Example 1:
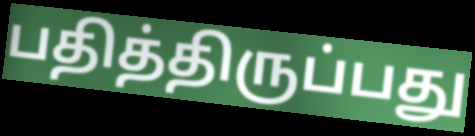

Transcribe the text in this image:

பதித்திருப்பது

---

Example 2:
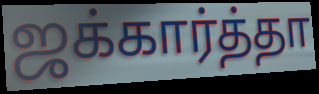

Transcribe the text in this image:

ஜக்கார்த்தா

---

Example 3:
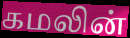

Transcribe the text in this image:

கமலின்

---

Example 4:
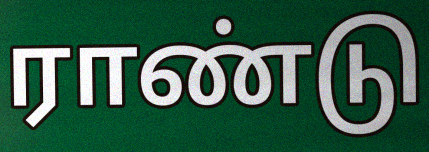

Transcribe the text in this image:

ராண்டு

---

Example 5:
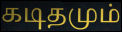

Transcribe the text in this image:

கடிதமும்